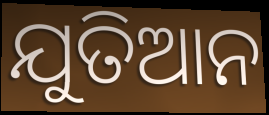
ଯୁତିଆନ